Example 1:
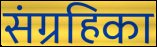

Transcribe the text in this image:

संग्रहिका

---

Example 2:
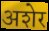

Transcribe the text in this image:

अशेर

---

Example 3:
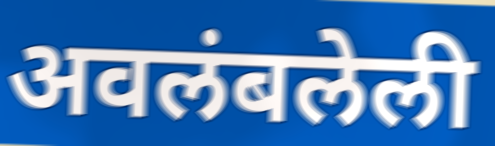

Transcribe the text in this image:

अवलंबलेली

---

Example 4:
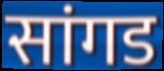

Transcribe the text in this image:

सांगड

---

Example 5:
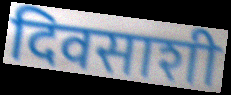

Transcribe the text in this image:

दिवसाशी